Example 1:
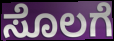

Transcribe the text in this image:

ಸೊಲಗೆ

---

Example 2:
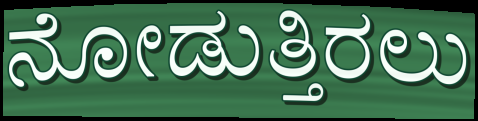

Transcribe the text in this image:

ನೋಡುತ್ತಿರಲು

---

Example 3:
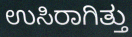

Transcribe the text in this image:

ಉಸಿರಾಗಿತ್ತು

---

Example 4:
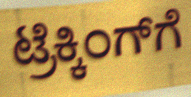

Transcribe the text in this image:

ಟ್ರೆಕ್ಕಿಂಗ್‌ಗೆ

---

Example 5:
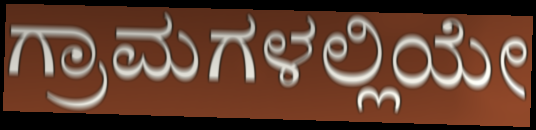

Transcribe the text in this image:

ಗ್ರಾಮಗಳಲ್ಲಿಯೇ